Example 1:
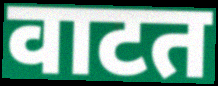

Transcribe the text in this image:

वाटत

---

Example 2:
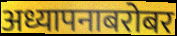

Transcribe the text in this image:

अध्यापनाबरोबर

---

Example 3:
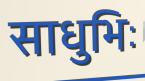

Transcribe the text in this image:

साधुभिः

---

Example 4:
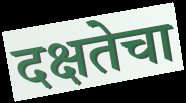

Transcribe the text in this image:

दक्षतेचा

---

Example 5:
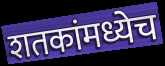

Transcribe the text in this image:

शतकांमध्येच